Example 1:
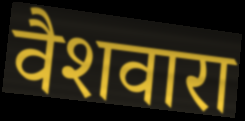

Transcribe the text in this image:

वैशवारा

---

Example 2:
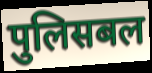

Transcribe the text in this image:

पुलिसबल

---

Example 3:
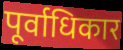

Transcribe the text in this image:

पूर्वाधिकार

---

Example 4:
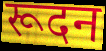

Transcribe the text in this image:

रूदन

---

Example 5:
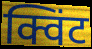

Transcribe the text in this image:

क्विंट